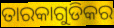
ତାରକାଗୁଡିକର